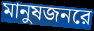
মানুষজনরে